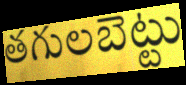
తగులబెట్టు